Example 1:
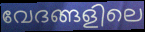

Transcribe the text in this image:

വേദങ്ങളിലെ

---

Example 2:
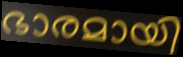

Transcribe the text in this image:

ഭാരമായി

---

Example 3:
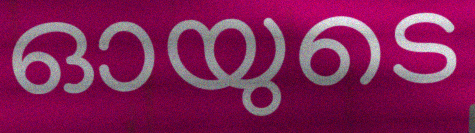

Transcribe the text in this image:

ഓയുടെ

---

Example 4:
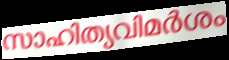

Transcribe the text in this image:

സാഹിത്യവിമർശം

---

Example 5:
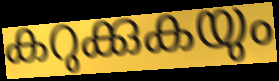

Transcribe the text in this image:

കറുക്കുകയും